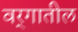
वर्गातील